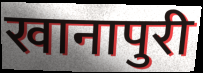
खानापुरी